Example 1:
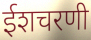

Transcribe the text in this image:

ईशचरणी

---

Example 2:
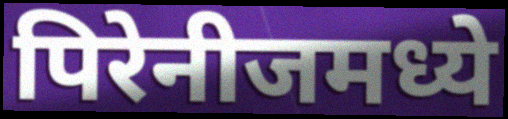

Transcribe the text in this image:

पिरेनीजमध्ये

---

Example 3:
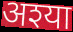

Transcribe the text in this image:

अश्या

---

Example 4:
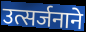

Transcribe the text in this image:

उत्सर्जनाने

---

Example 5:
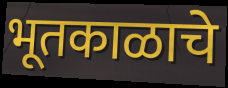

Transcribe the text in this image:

भूतकाळाचे